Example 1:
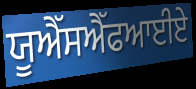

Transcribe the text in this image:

ਯੂਐੱਸਐੱਫਆਈਏ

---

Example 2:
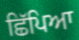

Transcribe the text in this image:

ਛਿੱਪਿਆ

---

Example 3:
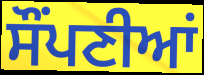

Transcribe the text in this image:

ਸੌਂਪਣੀਆਂ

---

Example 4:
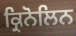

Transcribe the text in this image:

ਕ੍ਰਿਨੋਲਿਨ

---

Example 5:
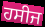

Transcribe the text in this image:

ਹਸੀਜ